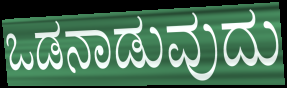
ಒಡನಾಡುವುದು